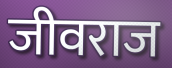
जीवराज